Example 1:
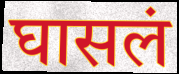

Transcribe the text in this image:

घासलं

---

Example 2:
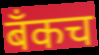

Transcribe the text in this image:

बँकच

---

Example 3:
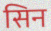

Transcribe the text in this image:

सिन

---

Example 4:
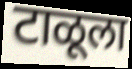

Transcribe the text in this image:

टाळूला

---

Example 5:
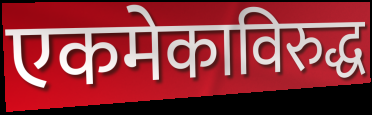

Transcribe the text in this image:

एकमेकाविरुद्ध